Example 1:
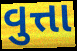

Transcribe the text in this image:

વુત્તા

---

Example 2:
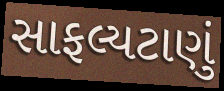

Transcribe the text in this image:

સાફલ્યટાણું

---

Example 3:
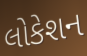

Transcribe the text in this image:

લોકેશન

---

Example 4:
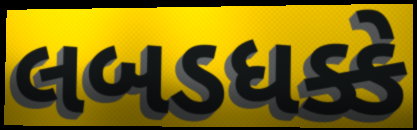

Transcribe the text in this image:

લબડધક્કે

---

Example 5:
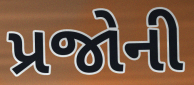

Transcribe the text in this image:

પ્રજોની